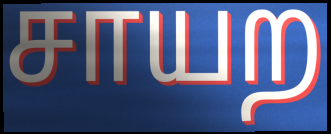
சாயற